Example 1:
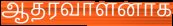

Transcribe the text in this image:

ஆதரவாளனாக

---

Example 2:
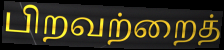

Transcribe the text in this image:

பிறவற்றைத்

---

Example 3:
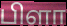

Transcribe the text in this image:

பிளா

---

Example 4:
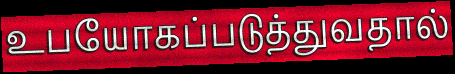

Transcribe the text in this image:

உபயோகப்படுத்துவதால்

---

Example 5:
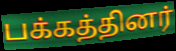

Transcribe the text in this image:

பக்கத்தினர்